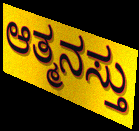
ಆತ್ಮನಸ್ತು